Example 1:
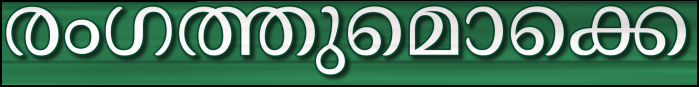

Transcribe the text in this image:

രംഗത്തുമൊക്കെ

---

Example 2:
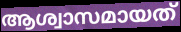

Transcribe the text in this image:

ആശ്വാസമായത്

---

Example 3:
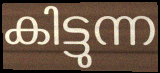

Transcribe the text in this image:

കിട്ടുന്ന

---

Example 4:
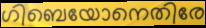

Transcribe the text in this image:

ഗിബെയോനെതിരേ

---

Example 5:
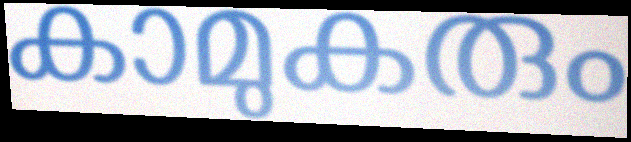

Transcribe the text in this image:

കാമുകരും